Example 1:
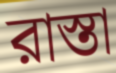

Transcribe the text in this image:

রাস্তা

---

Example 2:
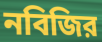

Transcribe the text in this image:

নবিজির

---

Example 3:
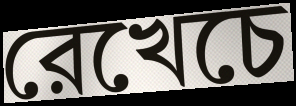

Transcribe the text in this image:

রেখেচে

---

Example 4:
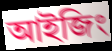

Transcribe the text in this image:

আইজিং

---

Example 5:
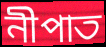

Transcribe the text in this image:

নীপাত